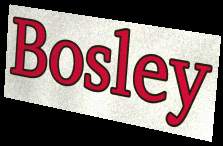
Bosley